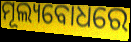
ମୂଲ୍ୟବୋଧରେ